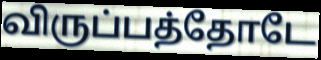
விருப்பத்தோடே